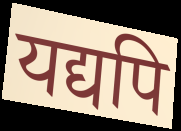
यद्यपि